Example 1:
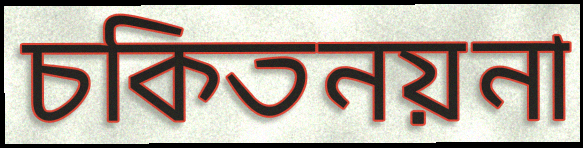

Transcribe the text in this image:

চকিতনয়না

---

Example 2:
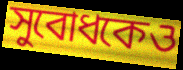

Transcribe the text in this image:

সুবোধকেও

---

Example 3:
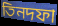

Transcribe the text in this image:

তিনদফা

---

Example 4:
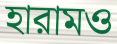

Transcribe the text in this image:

হারামও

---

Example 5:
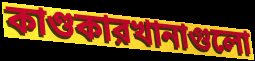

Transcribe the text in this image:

কাণ্ডকারখানাগুলো